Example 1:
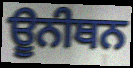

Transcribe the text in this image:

ਊਨੀਥਨ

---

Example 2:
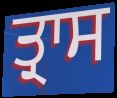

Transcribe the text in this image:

ਤ੍ਰਾਸ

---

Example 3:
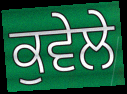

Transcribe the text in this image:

ਕੁਵੇਲੇ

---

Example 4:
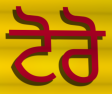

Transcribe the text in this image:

ਟੋਰੋ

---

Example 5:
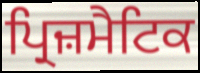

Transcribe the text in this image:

ਪ੍ਰਿਜ਼ਮੈਟਿਕ